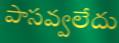
పాసవ్వలేదు